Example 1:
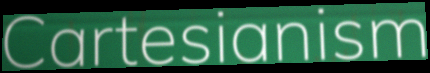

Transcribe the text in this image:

Cartesianism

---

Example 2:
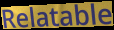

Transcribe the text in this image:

Relatable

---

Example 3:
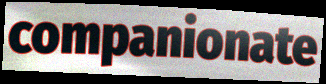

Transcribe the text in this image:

companionate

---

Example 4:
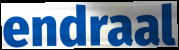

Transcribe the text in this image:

endraal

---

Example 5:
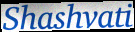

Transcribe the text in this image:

Shashvati